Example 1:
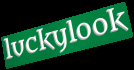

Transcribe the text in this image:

luckylook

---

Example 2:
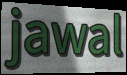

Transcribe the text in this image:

jawal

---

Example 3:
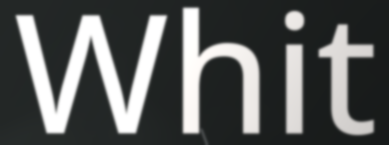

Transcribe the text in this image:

Whit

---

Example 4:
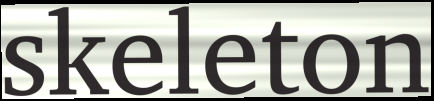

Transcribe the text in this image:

skeleton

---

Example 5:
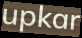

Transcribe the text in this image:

upkar